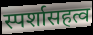
स्पर्शासहत्व